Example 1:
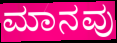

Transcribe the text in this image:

ಮಾನವು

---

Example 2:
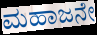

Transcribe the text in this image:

ಮಹಾಜನೇ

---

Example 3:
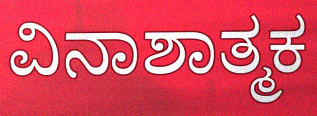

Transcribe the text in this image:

ವಿನಾಶಾತ್ಮಕ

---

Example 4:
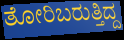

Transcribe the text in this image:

ತೋರಿಬರುತ್ತಿದ್ದ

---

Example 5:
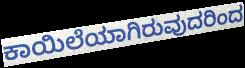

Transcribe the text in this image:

ಕಾಯಿಲೆಯಾಗಿರುವುದರಿಂದ